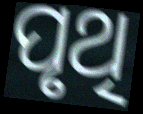
ପୃଥି